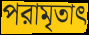
পরামৃতাৎ